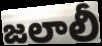
జలాలీ